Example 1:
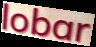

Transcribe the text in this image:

lobar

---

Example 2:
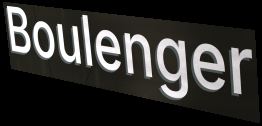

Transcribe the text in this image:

Boulenger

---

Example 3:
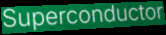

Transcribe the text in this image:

Superconductor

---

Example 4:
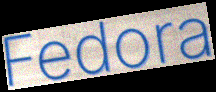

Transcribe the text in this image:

Fedora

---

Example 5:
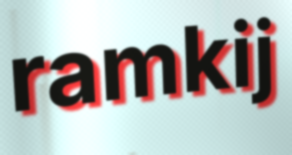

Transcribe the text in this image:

ramkij